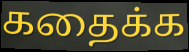
கதைக்க